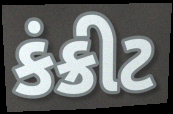
કંક્રીટ